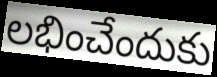
లభించేందుకు